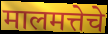
मालमत्तेचे